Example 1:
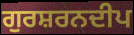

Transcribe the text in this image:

ਗੁਰਸ਼ਰਨਦੀਪ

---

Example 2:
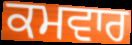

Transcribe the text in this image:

ਕਮਵਾਰ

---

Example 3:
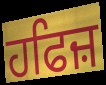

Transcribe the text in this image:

ਹਫਿਜ਼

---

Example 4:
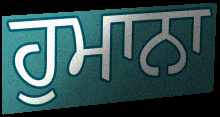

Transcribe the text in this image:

ਹੁਮਾਨਾ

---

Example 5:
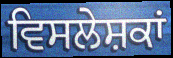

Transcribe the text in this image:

ਵਿਸਲੇਸ਼ਕਾਂ